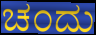
ಚಂದು